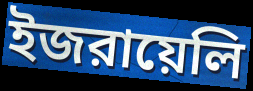
ইজরায়েলি